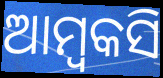
ଆମ୍ବକସି